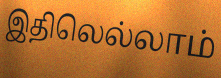
இதிலெல்லாம்